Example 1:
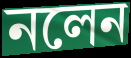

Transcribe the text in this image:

নলেন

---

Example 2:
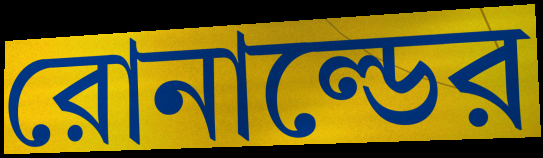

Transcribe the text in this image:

রোনাল্ডের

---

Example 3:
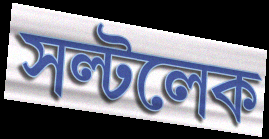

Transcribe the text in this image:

সল্টলেক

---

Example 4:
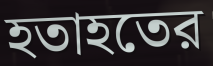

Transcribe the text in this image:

হতাহতের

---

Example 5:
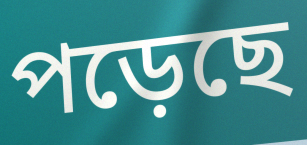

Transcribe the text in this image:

পড়েছে